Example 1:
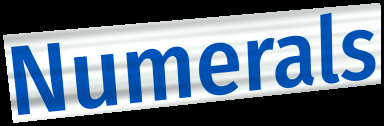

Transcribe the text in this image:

Numerals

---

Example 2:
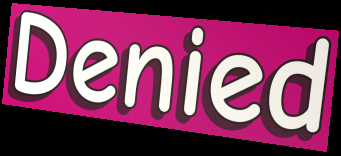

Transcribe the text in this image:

Denied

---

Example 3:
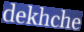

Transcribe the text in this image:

dekhche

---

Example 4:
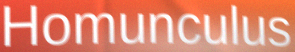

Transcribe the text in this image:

Homunculus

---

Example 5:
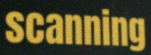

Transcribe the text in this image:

scanning